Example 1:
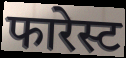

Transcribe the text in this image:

फारेस्ट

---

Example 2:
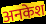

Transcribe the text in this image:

अनकेश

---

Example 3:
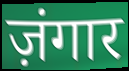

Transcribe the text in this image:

ज़ंगार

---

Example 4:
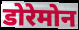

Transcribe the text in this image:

डोरेमोन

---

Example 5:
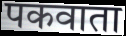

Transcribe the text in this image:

पकवाता